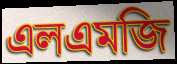
এলএমজি